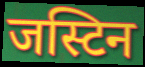
जस्टिन